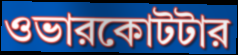
ওভারকোটটার